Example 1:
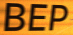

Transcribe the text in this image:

BEP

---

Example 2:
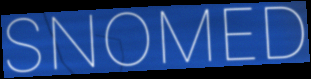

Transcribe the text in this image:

SNOMED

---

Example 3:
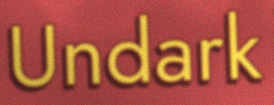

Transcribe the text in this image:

Undark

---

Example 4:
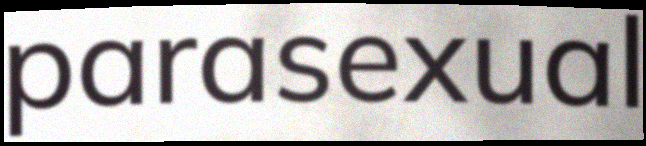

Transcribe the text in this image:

parasexual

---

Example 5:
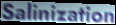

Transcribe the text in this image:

Salinization